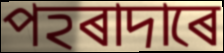
পহৰাদাৰে